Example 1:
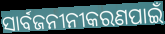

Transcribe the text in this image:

ସାର୍ବଜନୀନୀକରଣପାଇଁ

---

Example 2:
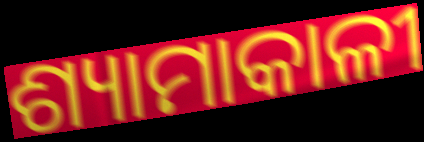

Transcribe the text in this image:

ଶ୍ୟାମାକାଳୀ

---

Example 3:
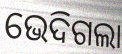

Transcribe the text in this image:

ଭେଦିଗଲା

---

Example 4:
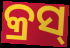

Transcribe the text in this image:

କ୍ରସ୍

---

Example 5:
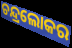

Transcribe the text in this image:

ଚନ୍ଦ୍ରଲୋକର